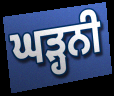
ਘੜ੍ਹਨੀ